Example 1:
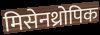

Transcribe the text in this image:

मिसेनथ्रोपिक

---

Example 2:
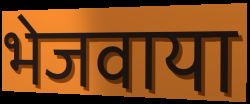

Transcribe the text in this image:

भेजवाया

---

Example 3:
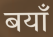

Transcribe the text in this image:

बयाँ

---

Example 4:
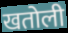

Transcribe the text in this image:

खतोली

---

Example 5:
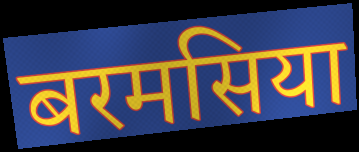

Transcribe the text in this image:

बरमसिया